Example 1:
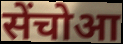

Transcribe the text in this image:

सेंचोआ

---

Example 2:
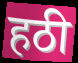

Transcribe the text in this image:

हठी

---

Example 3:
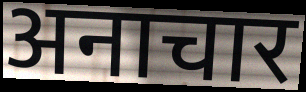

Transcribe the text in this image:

अनाचार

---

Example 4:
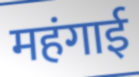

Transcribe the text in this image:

महंगाई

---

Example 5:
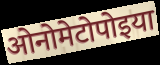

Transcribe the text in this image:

ओनोमेटोपोइया